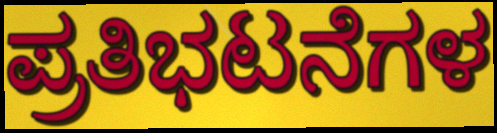
ಪ್ರತಿಭಟನೆಗಳ